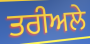
ਤਰੀਅਲੇ